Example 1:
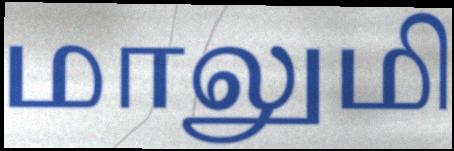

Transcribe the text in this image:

மாலுமி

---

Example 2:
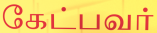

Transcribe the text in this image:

கேட்பவர்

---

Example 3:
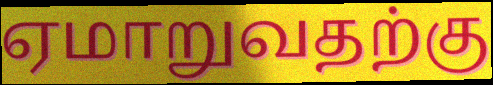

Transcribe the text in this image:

ஏமாறுவதற்கு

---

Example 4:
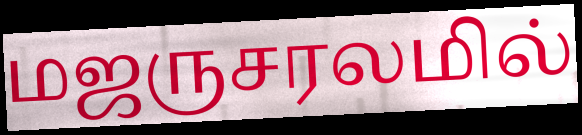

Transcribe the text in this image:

மஜருசரலமில்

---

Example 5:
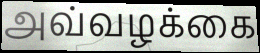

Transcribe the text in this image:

அவ்வழக்கை